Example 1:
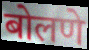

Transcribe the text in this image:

बोलणे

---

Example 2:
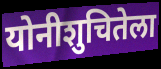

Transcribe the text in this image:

योनीशुचितेला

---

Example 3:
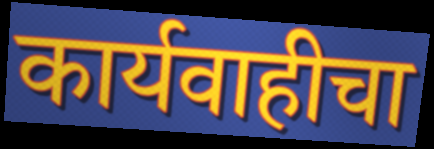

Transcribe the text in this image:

कार्यवाहीचा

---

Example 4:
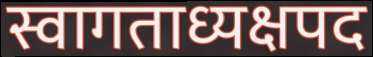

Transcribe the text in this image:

स्वागताध्यक्षपद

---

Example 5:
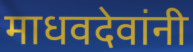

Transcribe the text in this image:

माधवदेवांनी